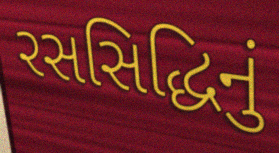
રસસિદ્ધિનું